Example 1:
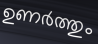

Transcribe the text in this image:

ഉണർത്തും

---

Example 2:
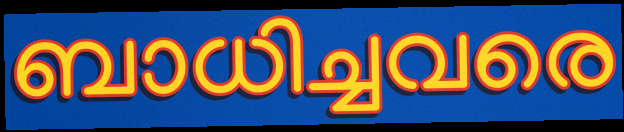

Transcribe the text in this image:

ബാധിച്ചവരെ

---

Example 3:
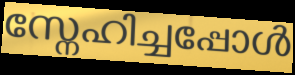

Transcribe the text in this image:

സ്നേഹിച്ചപ്പോൾ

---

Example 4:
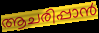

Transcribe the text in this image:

ആചരിപ്പാൻ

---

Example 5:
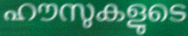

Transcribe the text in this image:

ഹൗസുകളുടെ